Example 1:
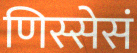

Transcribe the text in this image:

णिस्सेसं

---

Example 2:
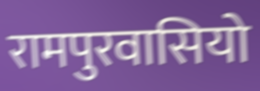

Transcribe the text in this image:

रामपुरवासियो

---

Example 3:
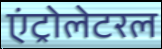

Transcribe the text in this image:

एंट्रोलेटरल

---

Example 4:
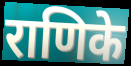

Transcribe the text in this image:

राणिके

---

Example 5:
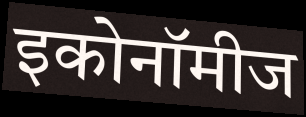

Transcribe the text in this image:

इकोनॉमीज